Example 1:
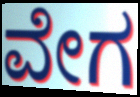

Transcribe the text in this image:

ವೇಗ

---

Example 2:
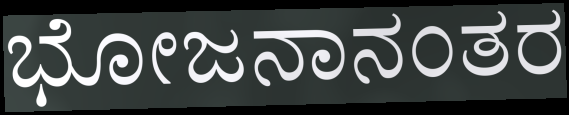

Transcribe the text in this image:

ಭೋಜನಾನಂತರ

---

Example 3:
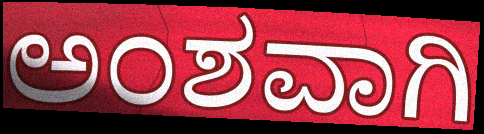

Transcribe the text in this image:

ಅಂಶವಾಗಿ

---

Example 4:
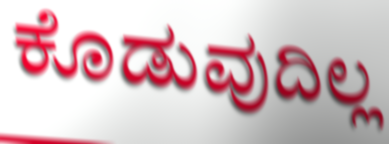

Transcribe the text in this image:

ಕೊಡುವುದಿಲ್ಲ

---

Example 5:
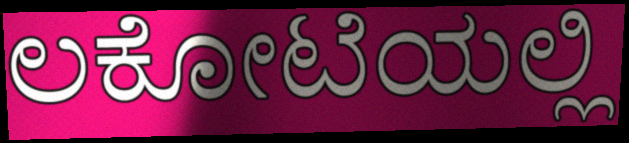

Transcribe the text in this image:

ಲಕೋಟೆಯಲ್ಲಿ